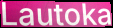
Lautoka